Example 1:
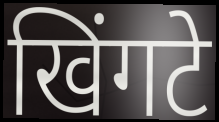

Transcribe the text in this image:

खिंगटे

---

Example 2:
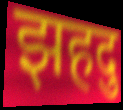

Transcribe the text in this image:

झहदु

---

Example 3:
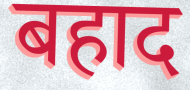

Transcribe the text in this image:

बहाद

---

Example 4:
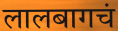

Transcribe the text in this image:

लालबागचं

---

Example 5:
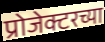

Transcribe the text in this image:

प्रोजेक्टरच्या